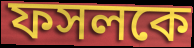
ফসলকে